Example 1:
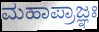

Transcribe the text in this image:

ಮಹಾಪ್ರಾಜ್ಞಃ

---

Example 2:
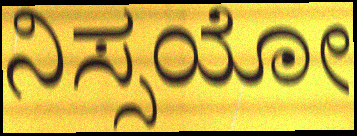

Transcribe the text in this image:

ನಿಸ್ಸಯೋ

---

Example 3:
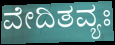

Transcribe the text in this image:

ವೇದಿತವ್ಯಃ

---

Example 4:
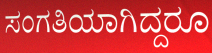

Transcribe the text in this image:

ಸಂಗತಿಯಾಗಿದ್ದರೂ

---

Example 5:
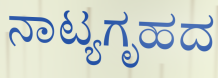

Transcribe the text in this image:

ನಾಟ್ಯಗೃಹದ